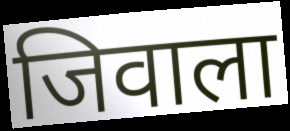
जिवाला